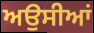
ਅਉਸੀਆਂ